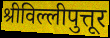
श्रीविल्लीपुत्तूर